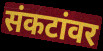
संकटांवर